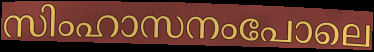
സിംഹാസനംപോലെ